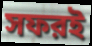
সফরই